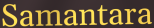
Samantara